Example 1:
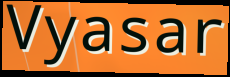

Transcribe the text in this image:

Vyasar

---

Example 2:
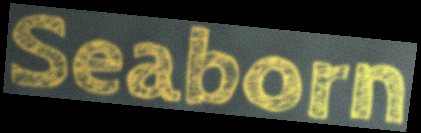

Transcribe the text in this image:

Seaborn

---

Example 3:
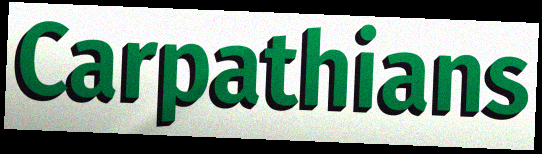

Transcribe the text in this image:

Carpathians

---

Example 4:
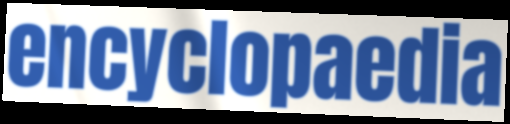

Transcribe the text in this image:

encyclopaedia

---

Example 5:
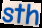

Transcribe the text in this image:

sth